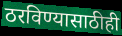
ठरविण्यासाठीही